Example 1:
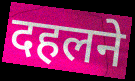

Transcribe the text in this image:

दहलने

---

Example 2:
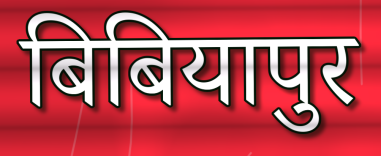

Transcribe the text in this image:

बिबियापुर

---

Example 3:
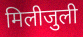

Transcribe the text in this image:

मिलीजुली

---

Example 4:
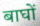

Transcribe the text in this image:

बाघों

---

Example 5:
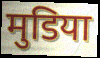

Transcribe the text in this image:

मुडिया